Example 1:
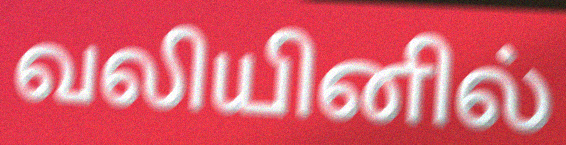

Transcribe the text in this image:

வலியினில்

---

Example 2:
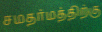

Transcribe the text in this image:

சமதர்மத்திற்கு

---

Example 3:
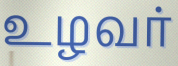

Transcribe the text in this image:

உழவர்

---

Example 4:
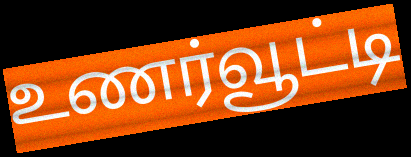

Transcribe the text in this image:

உணர்வூட்டி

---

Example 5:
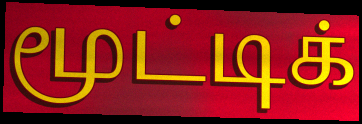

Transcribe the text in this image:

மூட்டிக்